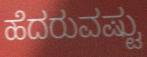
ಹೆದರುವಷ್ಟು